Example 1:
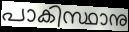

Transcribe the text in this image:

പാകിസ്ഥാനു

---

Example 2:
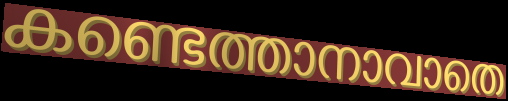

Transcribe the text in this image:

കണ്ടെത്താനാവാതെ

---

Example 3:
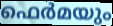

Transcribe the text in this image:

ഫെർമയും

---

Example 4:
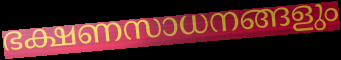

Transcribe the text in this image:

ഭക്ഷണസാധനങ്ങളും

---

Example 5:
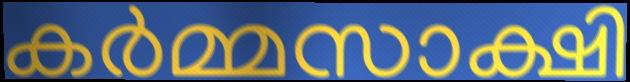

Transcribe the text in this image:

കർമ്മസാക്ഷി